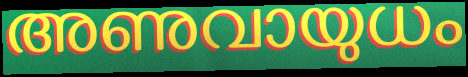
അണുവായുധം